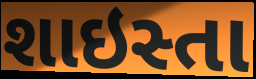
શાઇસ્તા